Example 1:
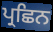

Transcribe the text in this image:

ਪ੍ਰਛਿਨ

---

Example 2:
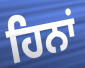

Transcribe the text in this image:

ਹਿਨਾਂ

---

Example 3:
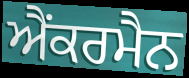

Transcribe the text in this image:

ਐਂਕਰਮੈਨ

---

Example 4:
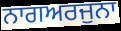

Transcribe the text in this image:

ਨਾਗਅਰਜੁਨਾ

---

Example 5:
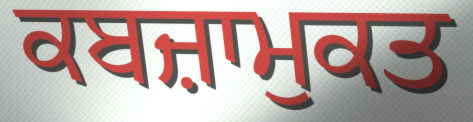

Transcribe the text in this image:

ਕਬਜ਼ਾਮੁਕਤ